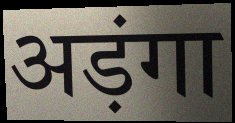
अड़ंगा